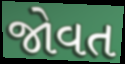
જોવત